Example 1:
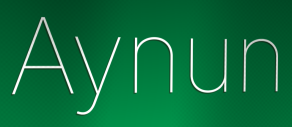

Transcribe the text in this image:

Aynun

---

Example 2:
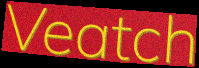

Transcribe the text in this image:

Veatch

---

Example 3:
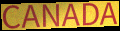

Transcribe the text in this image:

CANADA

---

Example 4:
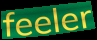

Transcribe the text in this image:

feeler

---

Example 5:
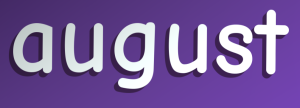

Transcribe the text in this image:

august